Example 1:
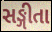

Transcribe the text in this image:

સઙ્ગીતા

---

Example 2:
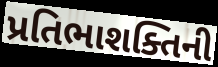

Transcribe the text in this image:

પ્રતિભાશક્તિની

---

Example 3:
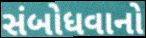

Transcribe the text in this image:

સંબોધવાનો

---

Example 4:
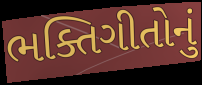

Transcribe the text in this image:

ભક્તિગીતોનું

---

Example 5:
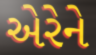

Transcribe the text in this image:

એરેને